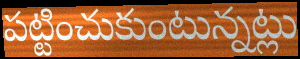
పట్టించుకుంటున్నట్లు